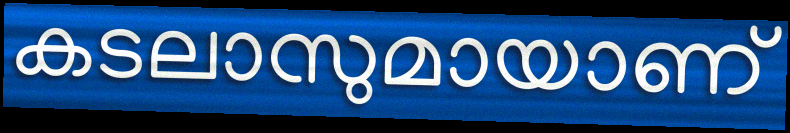
കടലാസുമായാണ്